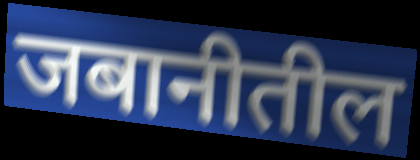
जबानीतील